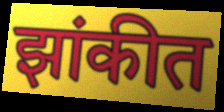
झांकीत